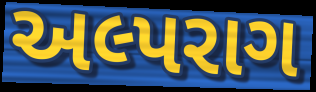
અલ્પરાગ